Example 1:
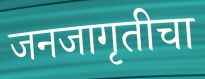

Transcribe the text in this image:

जनजागृतीचा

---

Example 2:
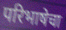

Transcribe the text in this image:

परिभाषेचा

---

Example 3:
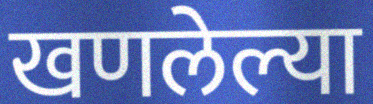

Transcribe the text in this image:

खणलेल्या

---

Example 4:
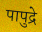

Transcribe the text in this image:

पापुद्रे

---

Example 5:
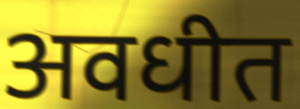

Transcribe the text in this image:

अवधीत